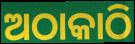
ଅଠାକାଠି